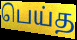
பெய்த